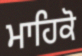
ਮਾਹਿਕੋ